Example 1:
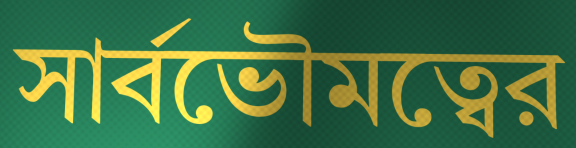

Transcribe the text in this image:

সার্বভৌমত্বের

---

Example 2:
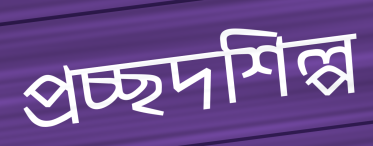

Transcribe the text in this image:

প্রচ্ছদশিল্প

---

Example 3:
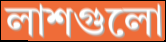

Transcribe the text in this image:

লাশগুলো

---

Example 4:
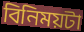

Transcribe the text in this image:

বিনিময়টা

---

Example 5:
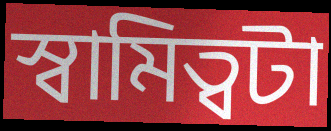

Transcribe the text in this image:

স্বামিত্বটা